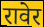
रावेर